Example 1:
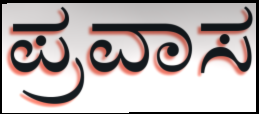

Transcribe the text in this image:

ಪ್ರವಾಸ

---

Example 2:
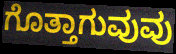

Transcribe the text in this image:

ಗೊತ್ತಾಗುವುವು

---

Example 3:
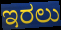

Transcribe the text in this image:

ಇರಲು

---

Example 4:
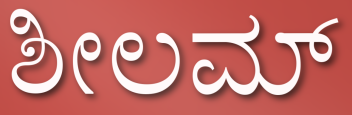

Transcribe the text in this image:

ಶೀಲಮ್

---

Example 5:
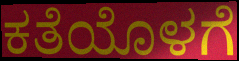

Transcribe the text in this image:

ಕತೆಯೊಳಗೆ